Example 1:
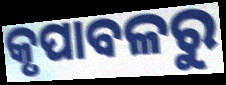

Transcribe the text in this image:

କୃପାବଳରୁ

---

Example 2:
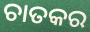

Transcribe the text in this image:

ଚାତକର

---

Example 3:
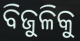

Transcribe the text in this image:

ବିଜୁଳିକୁ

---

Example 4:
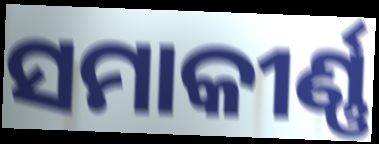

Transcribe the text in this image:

ସମାକୀର୍ଣ୍ଣ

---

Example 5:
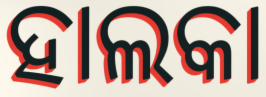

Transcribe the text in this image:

ହାଲକା